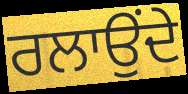
ਰਲਾਉਂਦੇ